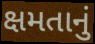
ક્ષમતાનું